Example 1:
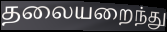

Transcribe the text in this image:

தலையறைந்து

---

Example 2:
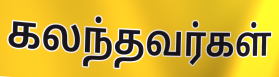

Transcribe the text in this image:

கலந்தவர்கள்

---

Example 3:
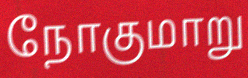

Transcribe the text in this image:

நோகுமாறு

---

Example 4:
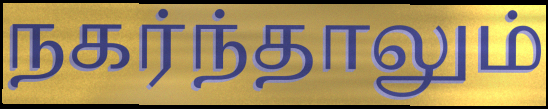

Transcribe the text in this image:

நகர்ந்தாலும்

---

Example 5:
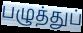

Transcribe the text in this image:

பழுத்துப்